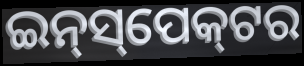
ଇନ୍‌ସ୍‌ପେକ୍‌ଟର